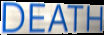
DEATH